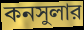
কনসুলার